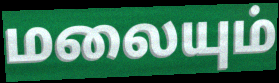
மலையும்